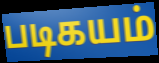
படிகயம்